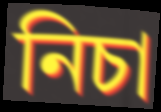
নিচা